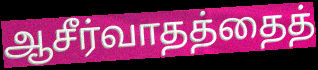
ஆசீர்வாதத்தைத்